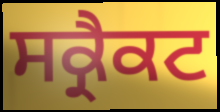
ਸਕ੍ਰੈਕਟ